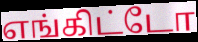
எங்கிட்டோ